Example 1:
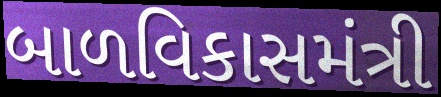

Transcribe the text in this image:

બાળવિકાસમંત્રી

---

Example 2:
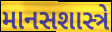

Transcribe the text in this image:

માનસશાસ્ત્રે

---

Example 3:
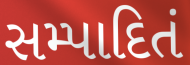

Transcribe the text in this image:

સમ્પાદિતં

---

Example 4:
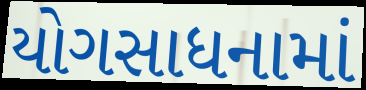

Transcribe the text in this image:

યોગસાધનામાં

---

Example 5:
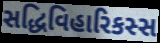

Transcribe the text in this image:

સદ્ધિવિહારિકસ્સ